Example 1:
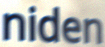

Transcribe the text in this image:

niden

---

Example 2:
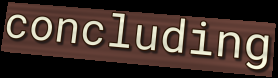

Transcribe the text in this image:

concluding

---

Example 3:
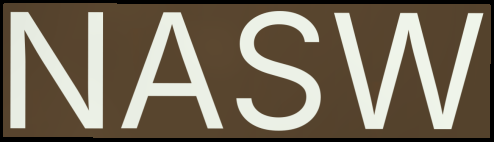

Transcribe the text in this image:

NASW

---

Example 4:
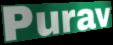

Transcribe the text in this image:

Purav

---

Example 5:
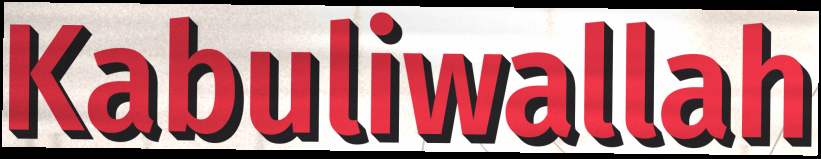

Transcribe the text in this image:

Kabuliwallah